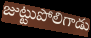
జుట్టుపోలిగాడు